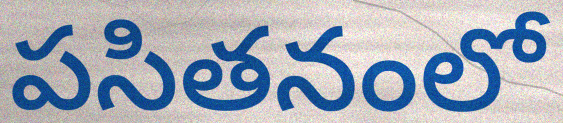
పసితనంలో